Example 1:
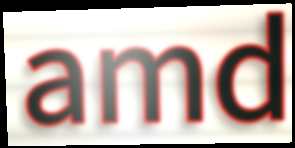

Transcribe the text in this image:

amd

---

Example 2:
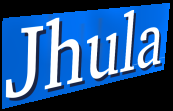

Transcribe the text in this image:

Jhula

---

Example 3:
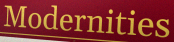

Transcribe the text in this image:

Modernities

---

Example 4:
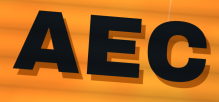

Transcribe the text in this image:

AEC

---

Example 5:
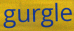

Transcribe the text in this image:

gurgle